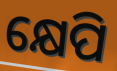
କ୍ଷେପି